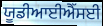
ਯੂਡੀਆਈਐੱਸਈ